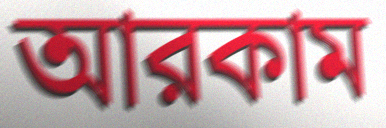
আরকাম